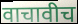
वाचावीच